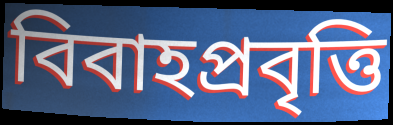
বিবাহপ্রবৃত্তি